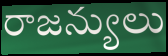
రాజన్యులు